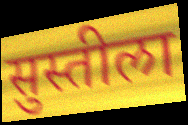
सुस्तीला